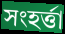
সংহর্ত্তা